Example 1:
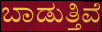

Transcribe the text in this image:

ಬಾಡುತ್ತಿವೆ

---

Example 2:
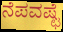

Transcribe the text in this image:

ನೆಪವಷ್ಟೆ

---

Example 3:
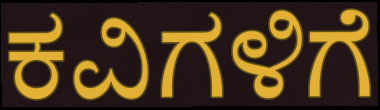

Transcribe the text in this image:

ಕವಿಗಳಿಗೆ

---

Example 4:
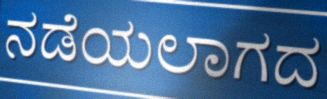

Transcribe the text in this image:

ನಡೆಯಲಾಗದ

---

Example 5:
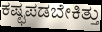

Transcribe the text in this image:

ಕಷ್ಟಪಡಬೇಕಿತ್ತು